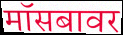
मॉसबावर